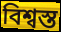
বিশ্বস্ত